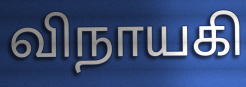
விநாயகி